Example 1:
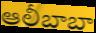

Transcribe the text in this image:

ఆలీబాబా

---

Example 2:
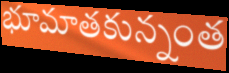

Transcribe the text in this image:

భూమాతకున్నంత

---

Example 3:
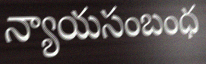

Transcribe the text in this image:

న్యాయసంబంధ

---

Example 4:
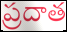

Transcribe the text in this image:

ప్రదాత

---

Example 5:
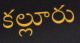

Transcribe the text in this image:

కల్లూరు